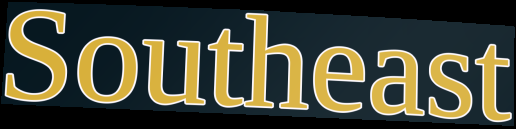
Southeast